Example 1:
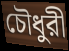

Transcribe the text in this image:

চৌধুরী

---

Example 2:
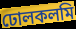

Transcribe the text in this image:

ঢোলকলমি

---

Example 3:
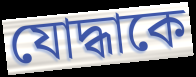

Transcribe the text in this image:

যোদ্ধাকে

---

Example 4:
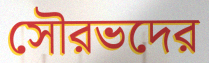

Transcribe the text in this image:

সৌরভদের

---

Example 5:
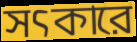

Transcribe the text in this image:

সৎকারে